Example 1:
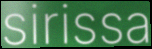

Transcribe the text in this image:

sirissa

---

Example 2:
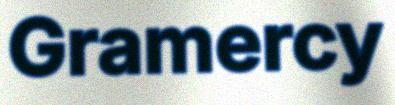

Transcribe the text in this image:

Gramercy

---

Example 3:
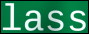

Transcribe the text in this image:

lass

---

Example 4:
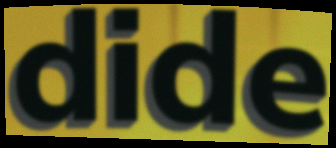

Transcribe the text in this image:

dide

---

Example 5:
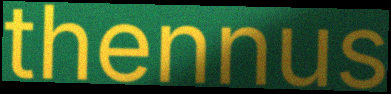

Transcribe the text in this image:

thennus